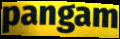
pangam